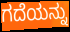
ಗದೆಯನ್ನು